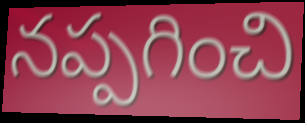
నప్పగించి